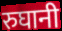
रुघानी